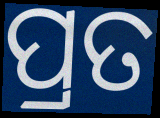
ପ୍ରତ